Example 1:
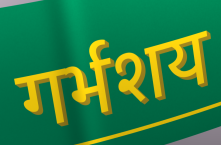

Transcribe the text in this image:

गर्भशय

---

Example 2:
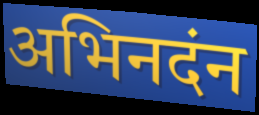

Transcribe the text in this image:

अभिनदंन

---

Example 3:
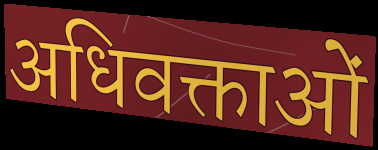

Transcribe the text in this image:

अधिवक्ताओं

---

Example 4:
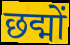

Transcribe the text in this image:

छद्मों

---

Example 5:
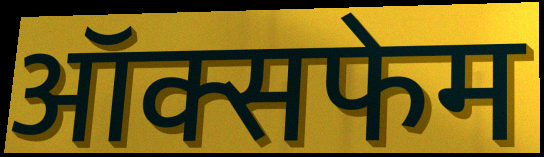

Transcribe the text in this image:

ऑक्सफेम